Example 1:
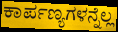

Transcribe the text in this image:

ಕಾರ್ಪಣ್ಯಗಳನ್ನೆಲ್ಲ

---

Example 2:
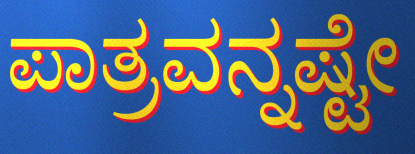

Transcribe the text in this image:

ಪಾತ್ರವನ್ನಷ್ಟೇ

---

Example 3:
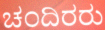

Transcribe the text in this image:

ಚಂದಿರರು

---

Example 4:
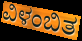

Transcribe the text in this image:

ವಿಳಂಬಿತ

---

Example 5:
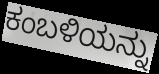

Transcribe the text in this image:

ಕಂಬಳಿಯನ್ನು